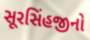
સૂરસિંહજીનો